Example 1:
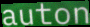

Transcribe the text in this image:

auton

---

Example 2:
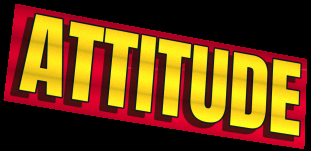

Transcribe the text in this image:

ATTITUDE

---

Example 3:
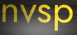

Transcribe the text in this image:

nvsp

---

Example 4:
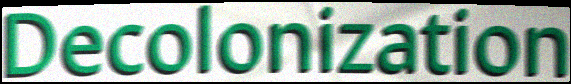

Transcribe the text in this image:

Decolonization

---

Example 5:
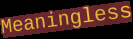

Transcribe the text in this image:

Meaningless